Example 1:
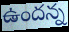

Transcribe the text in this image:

ఉందన్న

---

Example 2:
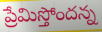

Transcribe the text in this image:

ప్రేమిస్తోందన్న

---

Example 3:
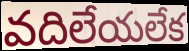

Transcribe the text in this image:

వదిలేయలేక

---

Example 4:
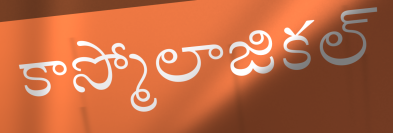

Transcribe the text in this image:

కాస్మోలాజికల్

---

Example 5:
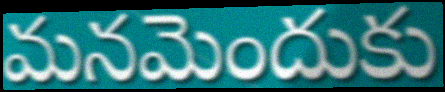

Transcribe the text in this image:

మనమెందుకు